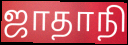
ஜாதாநி